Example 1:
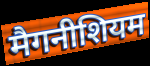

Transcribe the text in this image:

मैगनीशियम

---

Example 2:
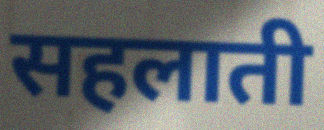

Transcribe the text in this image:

सहलाती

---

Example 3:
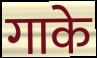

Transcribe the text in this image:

गाके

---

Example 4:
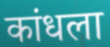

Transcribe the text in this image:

कांधला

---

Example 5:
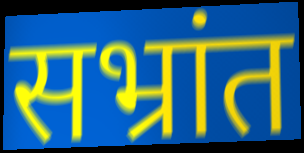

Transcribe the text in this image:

सभ्रांत